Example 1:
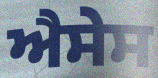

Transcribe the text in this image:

ਐਸੇਸ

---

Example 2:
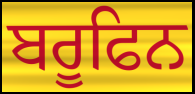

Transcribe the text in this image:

ਬਰੂਫਿਨ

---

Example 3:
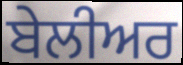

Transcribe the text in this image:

ਬੇਲੀਅਰ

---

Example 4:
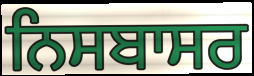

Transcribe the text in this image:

ਨਿਸਬਾਸਰ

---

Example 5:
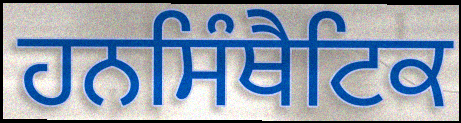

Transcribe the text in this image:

ਹਨਸਿੰਥੈਟਿਕ